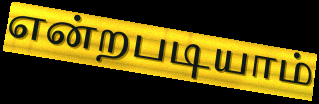
என்றபடியாம்